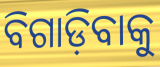
ବିଗାଡ଼ିବାକୁ